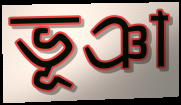
ভূঞা